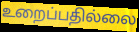
உறைப்பதில்லை